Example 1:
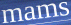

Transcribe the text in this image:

mams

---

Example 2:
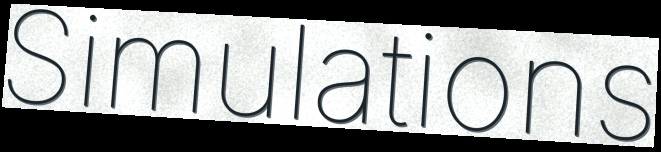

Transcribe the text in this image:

Simulations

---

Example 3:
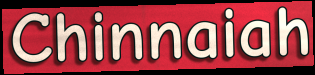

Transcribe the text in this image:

Chinnaiah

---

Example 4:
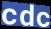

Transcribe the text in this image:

cdc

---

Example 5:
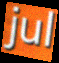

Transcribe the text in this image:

jul